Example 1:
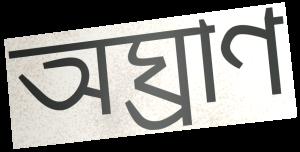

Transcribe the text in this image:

অঘ্রাণ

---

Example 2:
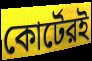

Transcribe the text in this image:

কোর্টেরই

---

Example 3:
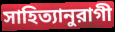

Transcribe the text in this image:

সাহিত্যানুরাগী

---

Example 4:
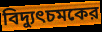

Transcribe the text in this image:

বিদ্যুৎচমকের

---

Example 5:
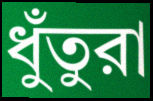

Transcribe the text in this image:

ধুঁতুরা